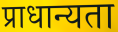
प्राधान्यता